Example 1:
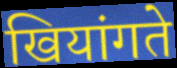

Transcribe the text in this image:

खियांगते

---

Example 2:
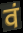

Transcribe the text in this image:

वं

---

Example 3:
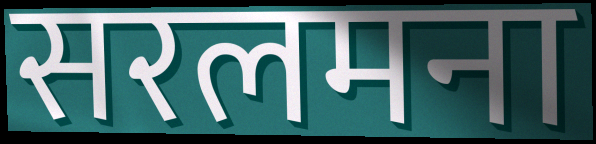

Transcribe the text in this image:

सरलमना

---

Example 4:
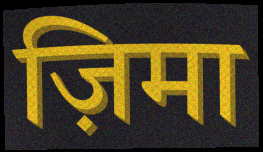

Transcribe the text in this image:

ज़िमा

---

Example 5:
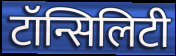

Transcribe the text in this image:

टॉन्सिलिटी